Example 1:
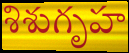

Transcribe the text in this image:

శిశుగృహ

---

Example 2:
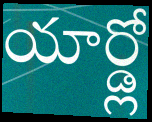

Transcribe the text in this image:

యార్డ్లో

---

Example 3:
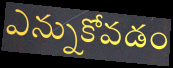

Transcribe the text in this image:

ఎన్నుకోవడం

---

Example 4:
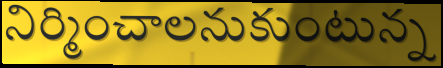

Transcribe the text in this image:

నిర్మించాలనుకుంటున్న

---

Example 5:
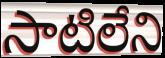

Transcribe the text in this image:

సాటిలేని